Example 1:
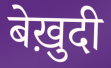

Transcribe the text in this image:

बेख़ुदी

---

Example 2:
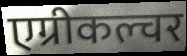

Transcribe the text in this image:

एग्रीकल्चर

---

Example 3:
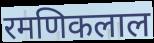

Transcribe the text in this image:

रमणिकलाल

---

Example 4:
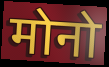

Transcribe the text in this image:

मोनो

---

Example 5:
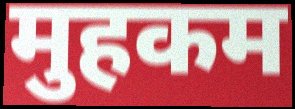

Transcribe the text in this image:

मुहकम